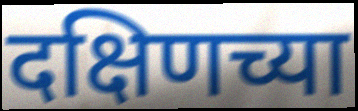
दक्षिणच्या